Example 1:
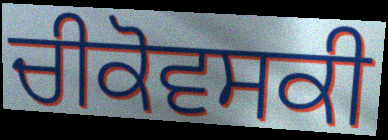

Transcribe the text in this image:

ਚੀਕੋਵਸਕੀ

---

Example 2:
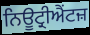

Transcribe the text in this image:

ਨਿਊਟ੍ਰੀਐਂਟਜ਼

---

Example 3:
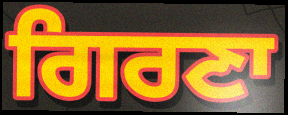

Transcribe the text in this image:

ਗਿਰਣਾ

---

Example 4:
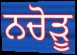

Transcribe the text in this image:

ਨਚੋੜੂ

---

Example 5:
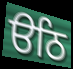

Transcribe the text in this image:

ੳਠਿ